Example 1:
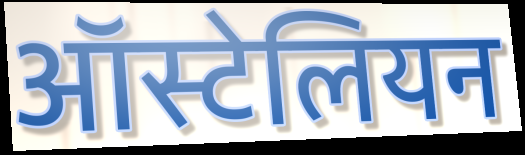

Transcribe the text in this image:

ऑस्टेलियन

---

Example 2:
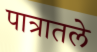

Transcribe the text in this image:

पात्रातले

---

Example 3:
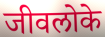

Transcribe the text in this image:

जीवलोके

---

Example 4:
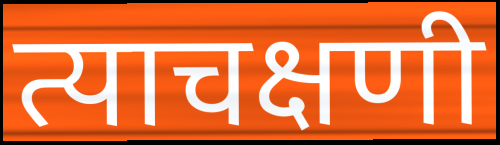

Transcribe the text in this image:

त्याचक्षणी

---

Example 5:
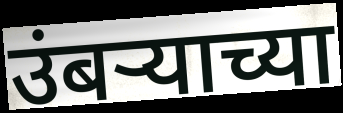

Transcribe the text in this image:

उंबऱ्याच्या